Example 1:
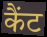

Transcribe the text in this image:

कैंट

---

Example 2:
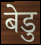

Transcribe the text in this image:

बेडु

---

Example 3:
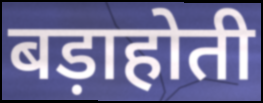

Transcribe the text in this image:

बड़ाहोती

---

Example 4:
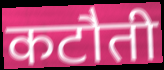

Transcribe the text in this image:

कटौती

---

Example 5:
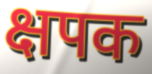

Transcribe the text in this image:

क्षपक